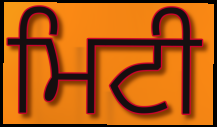
ਮਿਟੀ